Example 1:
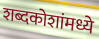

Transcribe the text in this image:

शब्दकोशांमध्ये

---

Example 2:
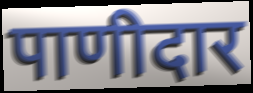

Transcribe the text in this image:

पाणीदार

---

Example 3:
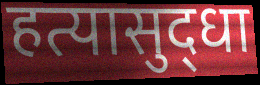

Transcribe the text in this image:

हत्यासुद्धा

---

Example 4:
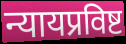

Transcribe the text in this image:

न्यायप्रविष्ट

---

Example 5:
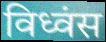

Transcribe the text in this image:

विध्वंस